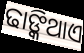
ଢାଙ୍କିଥାଏ